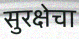
सुरक्षेचा